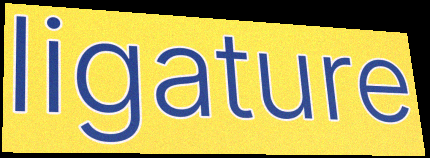
ligature